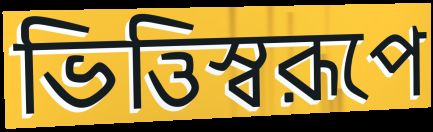
ভিত্তিস্বরূপে